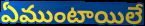
ఏముంటాయిలే